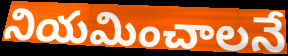
నియమించాలనే